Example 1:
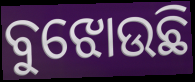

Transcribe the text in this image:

ବୁଝୋଉଛି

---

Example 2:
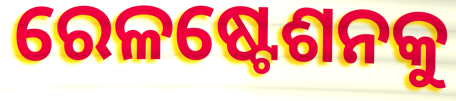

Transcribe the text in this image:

ରେଳଷ୍ଟେଶନକୁ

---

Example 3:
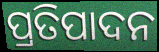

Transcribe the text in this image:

ପ୍ରତିପାଦନ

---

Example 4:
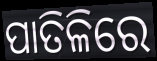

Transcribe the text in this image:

ପାତିଳିରେ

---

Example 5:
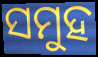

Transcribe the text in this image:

ସମୁହ